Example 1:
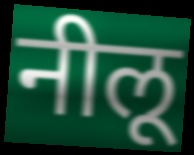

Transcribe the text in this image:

नीलू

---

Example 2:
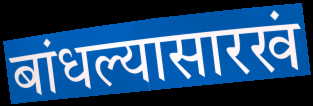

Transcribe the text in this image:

बांधल्यासारखं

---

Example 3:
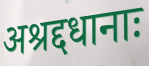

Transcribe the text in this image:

अश्रद्दधानाः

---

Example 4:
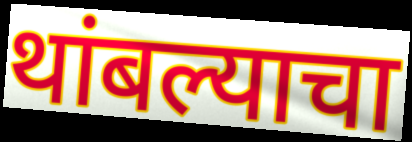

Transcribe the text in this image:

थांबल्याचा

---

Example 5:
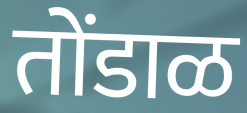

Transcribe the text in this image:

तोंडाळ